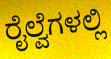
ರೈಲ್ವೆಗಳಲ್ಲಿ